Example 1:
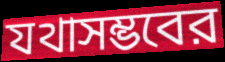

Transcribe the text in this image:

যথাসম্ভবের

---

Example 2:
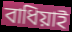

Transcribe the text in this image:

বাধিয়াই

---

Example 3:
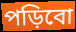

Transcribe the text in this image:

পড়িবো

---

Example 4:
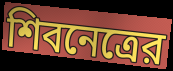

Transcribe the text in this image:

শিবনেত্রের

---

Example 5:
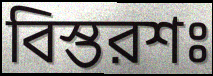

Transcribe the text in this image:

বিস্তরশঃ